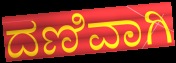
ದಣಿವಾಗಿ